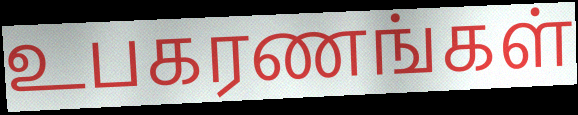
உபகரணங்கள்